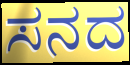
ಸನದ